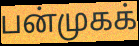
பன்முகக்